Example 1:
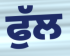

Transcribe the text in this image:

ਫੁੱਲ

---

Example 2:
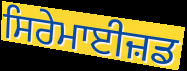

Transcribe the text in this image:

ਸਿਰੇਮਾਈਜ਼ਡ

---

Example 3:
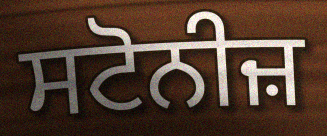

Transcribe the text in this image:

ਸਟੋਨੀਜ਼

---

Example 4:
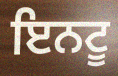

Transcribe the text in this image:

ਇਨਟੂ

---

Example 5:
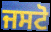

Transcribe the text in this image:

ਜਸਟੋ